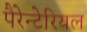
पैरेन्टेरियल